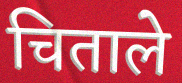
चिताले